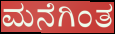
ಮನೆಗಿಂತ